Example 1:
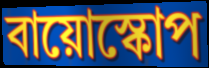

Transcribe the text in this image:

বায়োস্কোপ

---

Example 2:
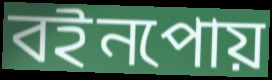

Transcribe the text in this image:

বইনপোয়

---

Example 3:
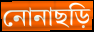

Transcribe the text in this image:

নোনাছড়ি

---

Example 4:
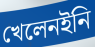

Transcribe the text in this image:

খেলেনইনি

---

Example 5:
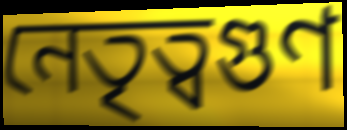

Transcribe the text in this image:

নেতৃত্বগুণ